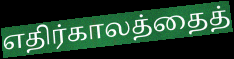
எதிர்காலத்தைத்